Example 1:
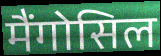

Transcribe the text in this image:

मैंगोसिल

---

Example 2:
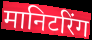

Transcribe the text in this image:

मानिटरिंग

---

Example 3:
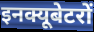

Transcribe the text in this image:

इनक्यूबेटरों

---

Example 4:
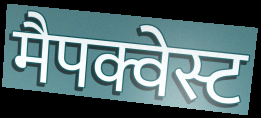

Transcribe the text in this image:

मैपक्वेस्ट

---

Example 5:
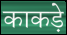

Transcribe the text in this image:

काकड़े